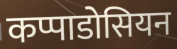
कप्पाडोसियन